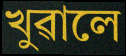
খুৱালে